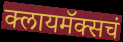
क्लायमॅक्सचं